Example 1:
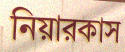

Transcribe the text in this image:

নিয়ারকাস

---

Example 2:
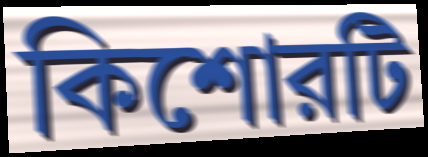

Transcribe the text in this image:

কিশোরটি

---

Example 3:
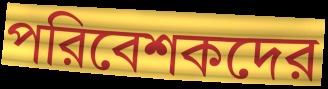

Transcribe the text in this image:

পরিবেশকদের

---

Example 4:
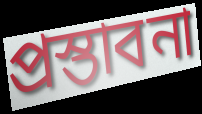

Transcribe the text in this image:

প্রস্তাবনা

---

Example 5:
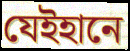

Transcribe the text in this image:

যেইহানে